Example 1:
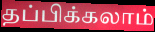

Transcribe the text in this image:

தப்பிக்கலாம்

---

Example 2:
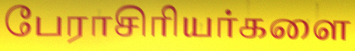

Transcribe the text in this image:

பேராசிரியர்களை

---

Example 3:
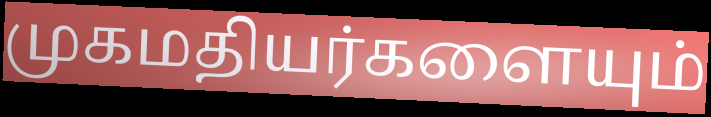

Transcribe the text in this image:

முகமதியர்களையும்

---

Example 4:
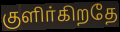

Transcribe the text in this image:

குளிர்கிறதே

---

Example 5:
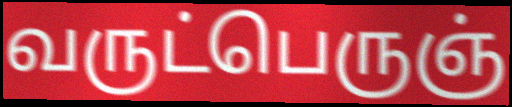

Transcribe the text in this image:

வருட்பெருஞ்